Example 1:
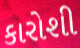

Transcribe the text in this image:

કારોશી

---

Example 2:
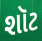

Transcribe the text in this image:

શૉટ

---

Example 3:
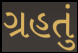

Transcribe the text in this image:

ગ્રહતું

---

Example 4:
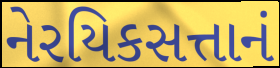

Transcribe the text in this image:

નેરયિકસત્તાનં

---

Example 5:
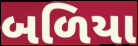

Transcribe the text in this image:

બળિયા